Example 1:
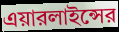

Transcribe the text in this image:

এয়ারলাইন্সের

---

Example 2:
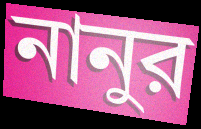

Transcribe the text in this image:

নানুর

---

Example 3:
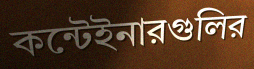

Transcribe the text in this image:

কন্টেইনারগুলির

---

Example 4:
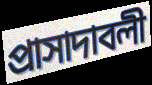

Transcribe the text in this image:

প্রাসাদাবলী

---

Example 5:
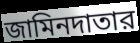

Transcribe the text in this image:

জামিনদাতার